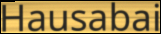
Hausabai